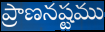
ప్రాణనష్టము